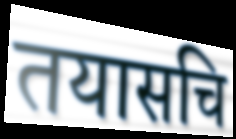
तयासचि